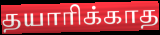
தயாரிக்காத